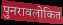
पुनरावलोकित